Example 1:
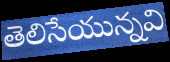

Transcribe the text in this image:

తెలిసేయున్నవి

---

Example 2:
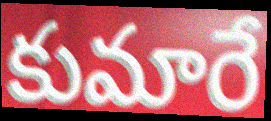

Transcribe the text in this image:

కుమారే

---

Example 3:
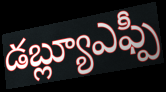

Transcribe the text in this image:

డబ్ల్యూఎఫ్పీ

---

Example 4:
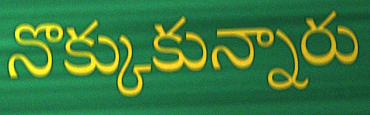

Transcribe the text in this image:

నొక్కుకున్నారు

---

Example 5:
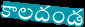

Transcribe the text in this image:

కాలదండ